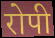
रोपी